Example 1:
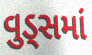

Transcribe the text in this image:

વુડ્સમાં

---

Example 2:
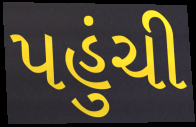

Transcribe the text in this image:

પહુંચી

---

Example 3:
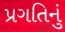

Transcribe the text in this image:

પ્રગતિનું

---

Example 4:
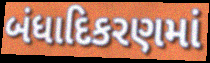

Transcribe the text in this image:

બંધાદિકરણમાં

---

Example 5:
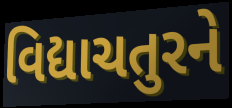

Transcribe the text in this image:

વિદ્યાચતુરને